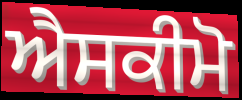
ਐਸਕੀਮੋ